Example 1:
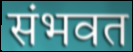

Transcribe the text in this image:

संभवत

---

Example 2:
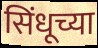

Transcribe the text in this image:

सिंधूच्या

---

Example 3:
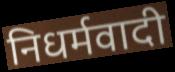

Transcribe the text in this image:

निधर्मवादी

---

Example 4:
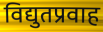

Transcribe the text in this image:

विद्युतप्रवाह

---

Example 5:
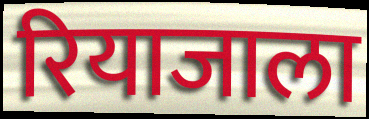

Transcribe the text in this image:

रियाजाला